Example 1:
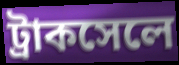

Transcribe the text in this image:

ট্রাকসেলে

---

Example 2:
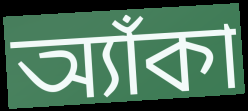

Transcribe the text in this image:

অ্যাঁকা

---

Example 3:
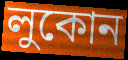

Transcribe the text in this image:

লুকোন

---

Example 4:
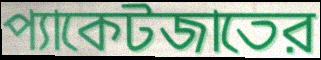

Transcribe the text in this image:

প্যাকেটজাতের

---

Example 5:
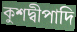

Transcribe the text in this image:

কুশদ্বীপাদি